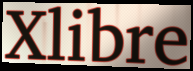
Xlibre